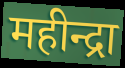
महीन्द्रा